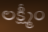
లక్ష్మీం